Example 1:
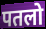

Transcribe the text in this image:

पतलो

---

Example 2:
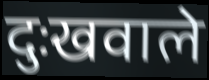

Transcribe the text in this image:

दुःखवाले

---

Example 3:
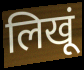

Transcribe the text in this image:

लिखूं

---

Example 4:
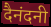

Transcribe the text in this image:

दैनंदनी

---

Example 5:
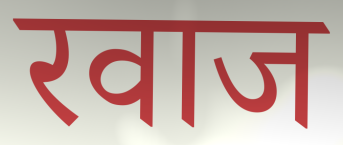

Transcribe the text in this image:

रवाज